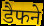
डैफने